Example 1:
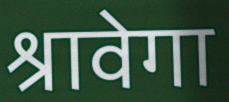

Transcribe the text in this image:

श्रावेगा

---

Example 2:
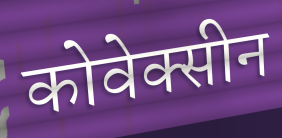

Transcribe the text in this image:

कोवेक्सीन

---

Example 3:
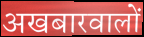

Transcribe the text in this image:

अखबारवालों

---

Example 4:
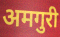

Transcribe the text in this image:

अमगुरी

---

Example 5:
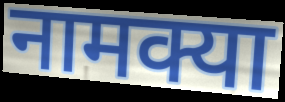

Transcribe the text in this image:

नामक्या